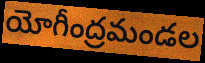
యోగీంద్రమండల